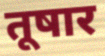
तूषार